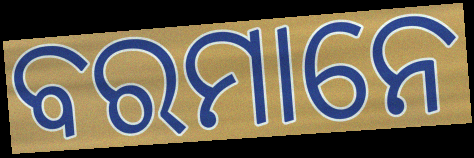
ବରମାନେ